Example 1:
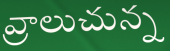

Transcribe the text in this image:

వ్రాలుచున్న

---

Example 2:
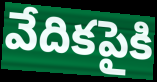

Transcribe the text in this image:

వేదికపైకి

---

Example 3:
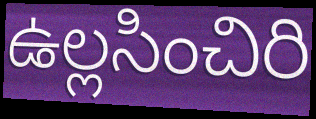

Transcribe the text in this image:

ఉల్లసించిరి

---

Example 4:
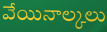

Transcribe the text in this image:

వేయినాల్కలు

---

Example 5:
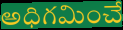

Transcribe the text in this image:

అధిగమించే